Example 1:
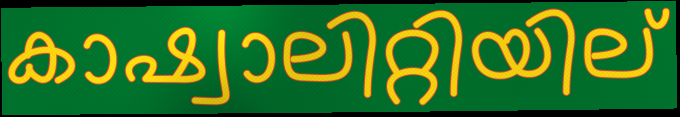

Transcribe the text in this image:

കാഷ്വാലിറ്റിയില്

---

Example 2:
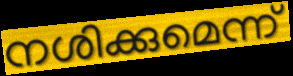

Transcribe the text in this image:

നശിക്കുമെന്ന്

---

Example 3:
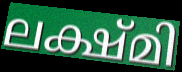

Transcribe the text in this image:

ലക്ഷ്മി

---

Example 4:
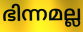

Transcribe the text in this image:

ഭിന്നമല്ല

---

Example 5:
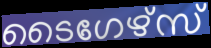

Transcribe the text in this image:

ടൈഗേഴ്സ്